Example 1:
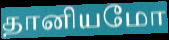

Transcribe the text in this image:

தானியமோ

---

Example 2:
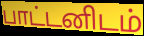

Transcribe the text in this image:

பாட்டனிடம்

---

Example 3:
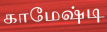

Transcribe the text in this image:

காமேஷ்டி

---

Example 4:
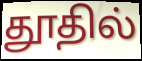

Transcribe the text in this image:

தூதில்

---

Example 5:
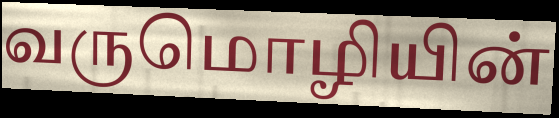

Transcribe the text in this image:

வருமொழியின்